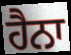
ਹੈਨਾ